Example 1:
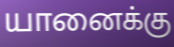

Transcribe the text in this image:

யானைக்கு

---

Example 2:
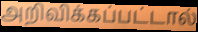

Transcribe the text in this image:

அறிவிக்கப்பட்டால்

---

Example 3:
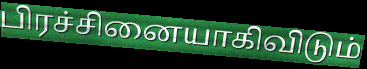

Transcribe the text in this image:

பிரச்சினையாகிவிடும்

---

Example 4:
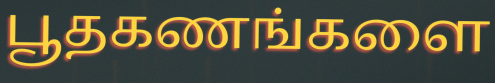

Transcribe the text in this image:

பூதகணங்களை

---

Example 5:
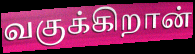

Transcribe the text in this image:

வகுக்கிறான்